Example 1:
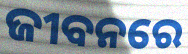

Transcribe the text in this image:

ଜୀବନରେ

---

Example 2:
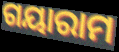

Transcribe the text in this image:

ଗୟାରାମ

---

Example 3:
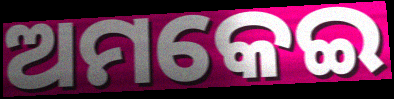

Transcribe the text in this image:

ଅମକେଇ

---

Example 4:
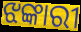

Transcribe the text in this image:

ଝଙ୍କାରୀ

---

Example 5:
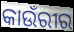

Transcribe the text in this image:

କାଉଁରୀର